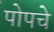
पोपचे